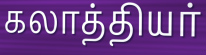
கலாத்தியர்